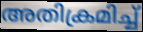
അതിക്രമിച്ച്